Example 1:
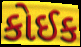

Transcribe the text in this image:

કોઈક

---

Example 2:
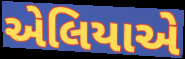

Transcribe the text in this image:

એલિયાએ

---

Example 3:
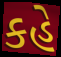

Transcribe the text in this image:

કહે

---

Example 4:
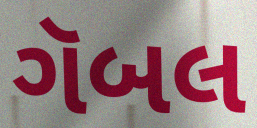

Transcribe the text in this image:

ગૅબલ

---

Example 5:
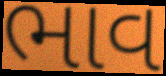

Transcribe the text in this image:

ભાવ